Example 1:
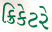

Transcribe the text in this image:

ક્રિકેટરે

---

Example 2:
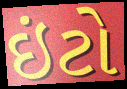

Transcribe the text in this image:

ઇંટો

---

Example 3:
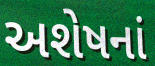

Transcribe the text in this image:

અશેષનાં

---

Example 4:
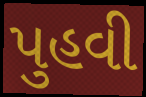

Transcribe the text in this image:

પુહવી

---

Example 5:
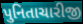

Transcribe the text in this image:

પુનિતાચારીજી